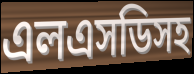
এলএসডিসহ